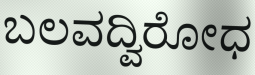
ಬಲವದ್ವಿರೋಧ